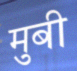
मुबी